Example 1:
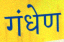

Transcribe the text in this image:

गंधेण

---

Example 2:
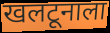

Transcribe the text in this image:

खलटूनाला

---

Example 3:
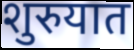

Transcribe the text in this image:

शुरुयात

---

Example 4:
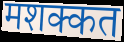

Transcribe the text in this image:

मशक्‍कत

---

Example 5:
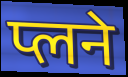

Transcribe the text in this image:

प्लने